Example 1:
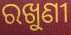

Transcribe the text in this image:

ରଖୁଣୀ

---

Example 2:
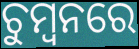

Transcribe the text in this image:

ଚୁମ୍ୱନରେ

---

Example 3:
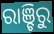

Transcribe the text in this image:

ରାଞ୍ଚିରୁ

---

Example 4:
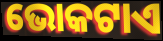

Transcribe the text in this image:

ଭୋକଟାଏ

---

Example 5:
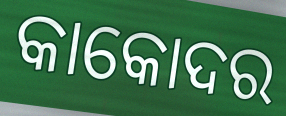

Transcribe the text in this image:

କାକୋଦର